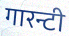
गारन्टी